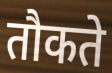
तौकते